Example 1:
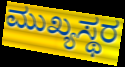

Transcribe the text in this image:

ಮುಖ್ಯಸ್ಥರ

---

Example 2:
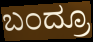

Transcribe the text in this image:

ಬಂದ್ರೂ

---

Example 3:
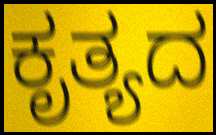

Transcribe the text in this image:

ಕೃತ್ಯದ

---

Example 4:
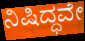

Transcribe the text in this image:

ನಿಷಿದ್ಧವೇ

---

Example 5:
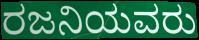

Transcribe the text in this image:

ರಜನಿಯವರು